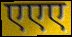
एएए